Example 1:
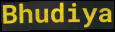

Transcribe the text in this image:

Bhudiya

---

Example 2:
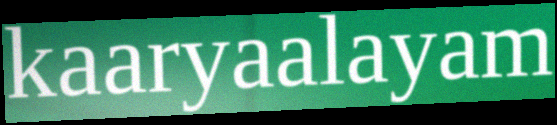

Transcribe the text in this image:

kaaryaalayam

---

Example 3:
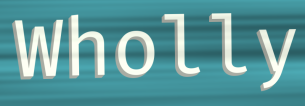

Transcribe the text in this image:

Wholly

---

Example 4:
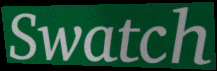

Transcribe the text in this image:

Swatch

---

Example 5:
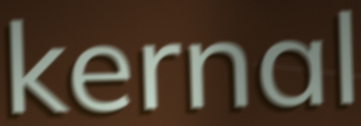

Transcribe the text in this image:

kernal